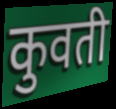
कुवती